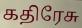
கதிரேசு